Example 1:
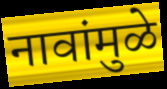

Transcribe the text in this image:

नावांमुळे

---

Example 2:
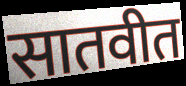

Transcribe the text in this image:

सातवीत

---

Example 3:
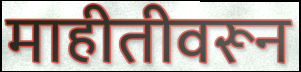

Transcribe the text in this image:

माहीतीवरून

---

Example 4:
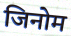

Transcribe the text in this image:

जिनोम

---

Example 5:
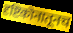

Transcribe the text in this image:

दृष्टिकोनातूनच